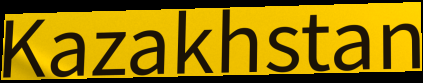
Kazakhstan